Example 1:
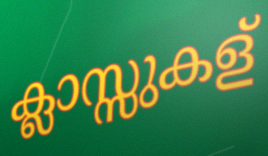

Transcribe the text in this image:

ക്ലാസ്സുകള്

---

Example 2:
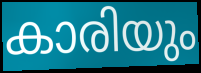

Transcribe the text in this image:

കാരിയും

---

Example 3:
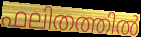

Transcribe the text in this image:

ഫലിതത്തിൽ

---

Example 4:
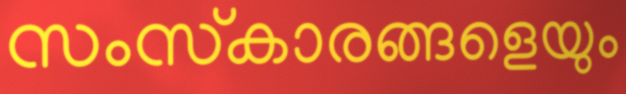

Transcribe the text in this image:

സംസ്‌കാരങ്ങളെയും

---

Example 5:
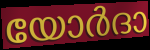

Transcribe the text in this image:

യോർദാ